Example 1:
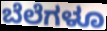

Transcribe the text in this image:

ಬೆಲೆಗಳೂ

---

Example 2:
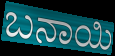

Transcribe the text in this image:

ಬನಾಯಿ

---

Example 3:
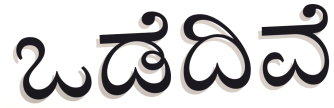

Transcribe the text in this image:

ಒಡೆದಿವೆ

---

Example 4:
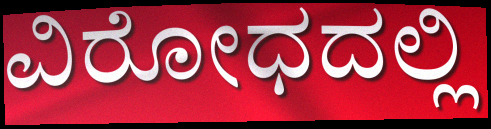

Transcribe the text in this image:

ವಿರೋಧದಲ್ಲಿ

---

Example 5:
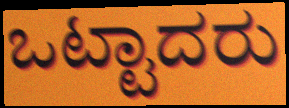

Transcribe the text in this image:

ಒಟ್ಟಾದರು